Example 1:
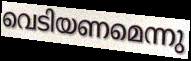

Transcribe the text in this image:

വെടിയണമെന്നു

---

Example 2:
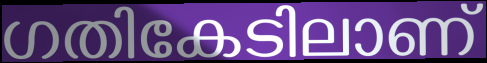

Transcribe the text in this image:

ഗതികേടിലാണ്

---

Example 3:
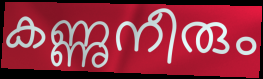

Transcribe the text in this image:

കണ്ണുനീരും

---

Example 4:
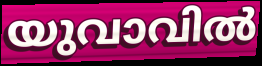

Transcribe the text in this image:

യുവാവിൽ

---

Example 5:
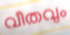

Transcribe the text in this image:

വീതവും